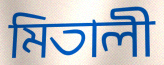
মিতালী